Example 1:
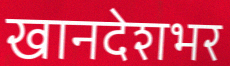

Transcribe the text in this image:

खानदेशभर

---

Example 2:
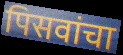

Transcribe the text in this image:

पिसवांचा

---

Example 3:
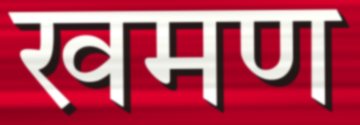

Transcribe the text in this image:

खमण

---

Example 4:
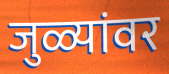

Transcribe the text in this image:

जुळ्यांवर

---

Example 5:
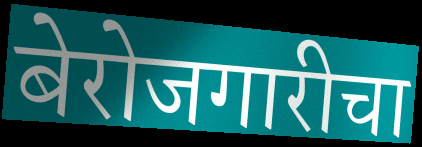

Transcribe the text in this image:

बेरोजगारीचा